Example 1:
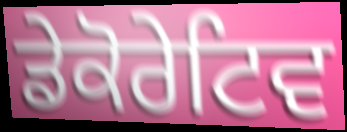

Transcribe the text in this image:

ਡੇਕੋਰੇਟਿਵ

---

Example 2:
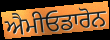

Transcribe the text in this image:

ਐਮੀਓਡਾਰੋਨ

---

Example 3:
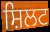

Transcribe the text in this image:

ਸ਼ਿਲਟ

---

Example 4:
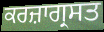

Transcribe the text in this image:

ਕਰਜ਼ਾਗ੍ਰਸਤ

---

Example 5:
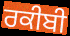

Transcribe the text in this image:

ਰਕੀਬੀ